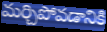
మర్చిపోవడానికి